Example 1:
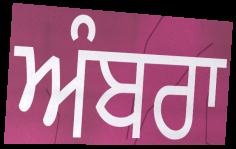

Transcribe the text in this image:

ਅੰਬਰਾ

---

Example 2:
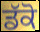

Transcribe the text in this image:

ਡੱਕੋ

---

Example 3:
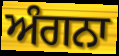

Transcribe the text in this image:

ਅੰਗਨਾ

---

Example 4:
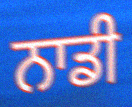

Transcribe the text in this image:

ਨਾਡੀ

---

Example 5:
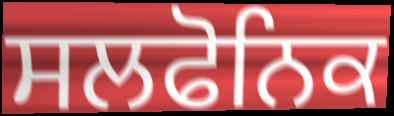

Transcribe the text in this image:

ਸਲਫੋਨਿਕ